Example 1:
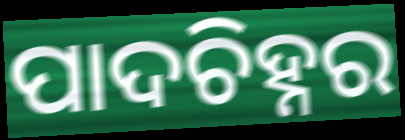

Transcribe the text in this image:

ପାଦଚିହ୍ନର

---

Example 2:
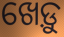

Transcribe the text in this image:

ଖେଡ଼ୁ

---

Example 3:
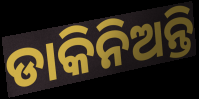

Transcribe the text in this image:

ଡାକିନିଅନ୍ତି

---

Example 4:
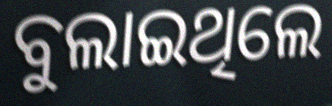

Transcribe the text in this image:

ବୁଲାଇଥିଲେ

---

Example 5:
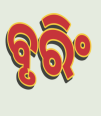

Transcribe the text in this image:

ବୃରିଂ